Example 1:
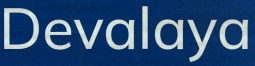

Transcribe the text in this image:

Devalaya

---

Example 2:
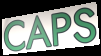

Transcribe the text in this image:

CAPS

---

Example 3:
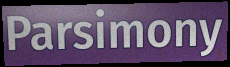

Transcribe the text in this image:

Parsimony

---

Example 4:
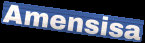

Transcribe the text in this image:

Amensisa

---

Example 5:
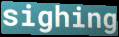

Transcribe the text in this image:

sighing